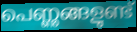
പെണ്ണുങ്ങളുണ്ട്